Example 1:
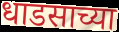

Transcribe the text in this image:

धाडसाच्या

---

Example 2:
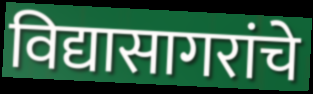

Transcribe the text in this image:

विद्यासागरांचे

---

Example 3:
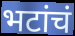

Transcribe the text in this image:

भटांचं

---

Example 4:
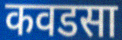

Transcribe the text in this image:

कवडसा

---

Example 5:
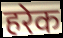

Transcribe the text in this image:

हरेक